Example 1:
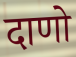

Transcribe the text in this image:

दाणो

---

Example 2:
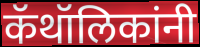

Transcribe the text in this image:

कॅथॉलिकांनी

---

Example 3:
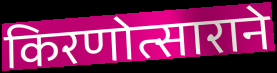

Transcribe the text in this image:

किरणोत्साराने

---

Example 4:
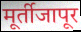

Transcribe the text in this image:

मूर्तीजापूर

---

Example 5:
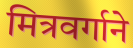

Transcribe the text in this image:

मित्रवर्गाने